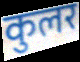
कुलर